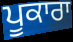
ਪੂਕਾਰਾ